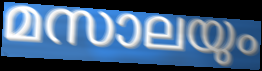
മസാലയും